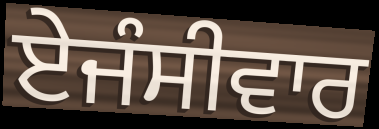
ਏਜੰਸੀਵਾਰ